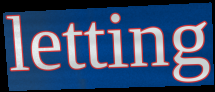
letting